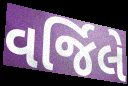
વર્જિલે